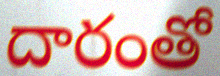
దారంతో